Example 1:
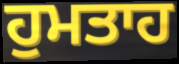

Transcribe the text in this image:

ਹੁਮਤਾਹ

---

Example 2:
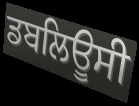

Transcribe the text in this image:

ਡਬਲਿਊਸੀ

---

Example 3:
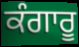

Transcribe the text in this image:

ਕੰਗਾਰੂ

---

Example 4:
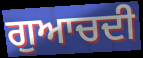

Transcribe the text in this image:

ਗੁਆਚਦੀ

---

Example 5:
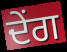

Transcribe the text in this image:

ਦੇਂਗ